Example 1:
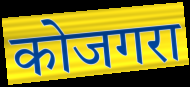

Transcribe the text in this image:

कोजगरा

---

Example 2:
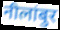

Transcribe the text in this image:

नीलांबुर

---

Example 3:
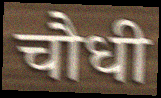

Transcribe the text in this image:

चौधी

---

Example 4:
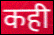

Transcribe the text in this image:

कही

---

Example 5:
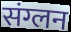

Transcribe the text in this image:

संग्लन